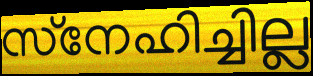
സ്‌നേഹിച്ചില്ല